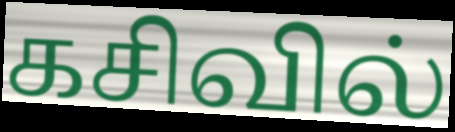
கசிவில்